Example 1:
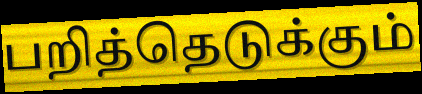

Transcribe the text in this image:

பறித்தெடுக்கும்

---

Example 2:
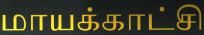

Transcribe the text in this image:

மாயக்காட்சி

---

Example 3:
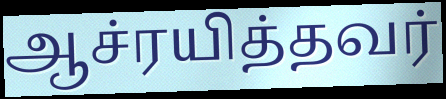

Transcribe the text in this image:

ஆச்ரயித்தவர்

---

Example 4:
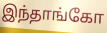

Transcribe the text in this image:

இந்தாங்கோ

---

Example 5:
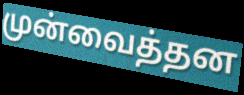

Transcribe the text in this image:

முன்வைத்தன